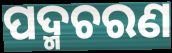
ପଦ୍ମଚରଣ